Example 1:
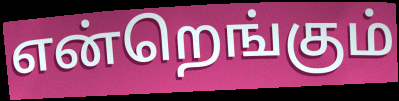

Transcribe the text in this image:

என்றெங்கும்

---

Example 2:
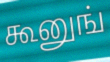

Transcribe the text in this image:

கூனுங்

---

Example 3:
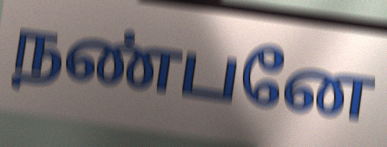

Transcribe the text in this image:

நண்பனே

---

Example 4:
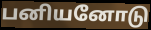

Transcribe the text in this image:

பனியனோடு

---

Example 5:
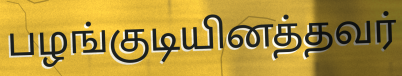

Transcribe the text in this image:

பழங்குடியினத்தவர்